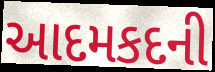
આદમકદની